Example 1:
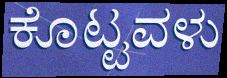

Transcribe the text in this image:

ಕೊಟ್ಟವಳು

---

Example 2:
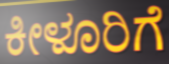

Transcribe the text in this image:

ಕೀಳೂರಿಗೆ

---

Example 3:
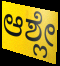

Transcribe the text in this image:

ಆಶ್ಲೇ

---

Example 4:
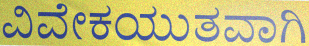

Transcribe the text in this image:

ವಿವೇಕಯುತವಾಗಿ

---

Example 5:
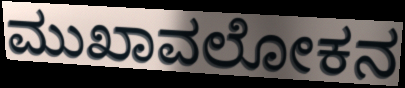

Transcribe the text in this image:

ಮುಖಾವಲೋಕನ